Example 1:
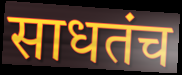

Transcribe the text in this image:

साधतंच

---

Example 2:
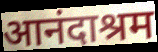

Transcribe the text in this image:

आनंदाश्रम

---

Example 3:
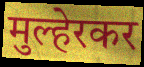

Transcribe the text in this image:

मुल्हेरकर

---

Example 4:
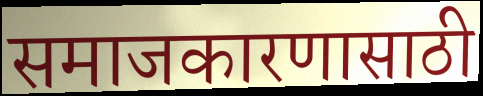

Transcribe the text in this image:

समाजकारणासाठी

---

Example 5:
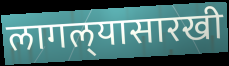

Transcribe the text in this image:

लागल्यासारखी